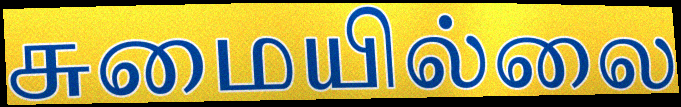
சுமையில்லை